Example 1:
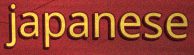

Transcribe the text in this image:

japanese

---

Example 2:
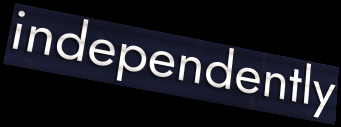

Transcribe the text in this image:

independently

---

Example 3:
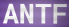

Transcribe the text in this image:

ANTF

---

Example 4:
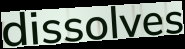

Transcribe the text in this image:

dissolves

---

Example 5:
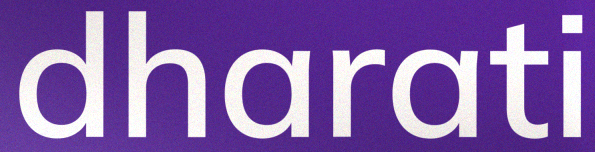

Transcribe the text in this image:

dharati